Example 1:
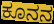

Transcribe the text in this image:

ಕೂನನ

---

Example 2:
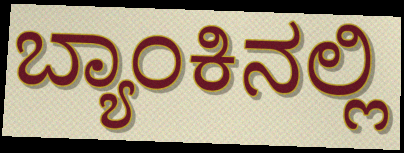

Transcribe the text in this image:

ಬ್ಯಾಂಕಿನಲ್ಲಿ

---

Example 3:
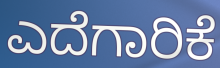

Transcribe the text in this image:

ಎದೆಗಾರಿಕೆ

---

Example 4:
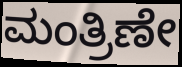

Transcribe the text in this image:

ಮಂತ್ರಿಣೇ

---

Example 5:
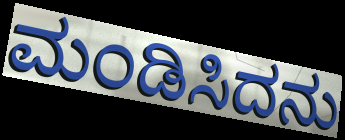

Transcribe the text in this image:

ಮಂಡಿಸಿದನು